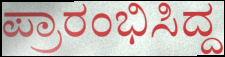
ಪ್ರಾರಂಭಿಸಿದ್ದ